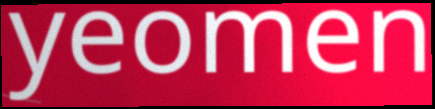
yeomen